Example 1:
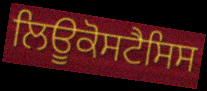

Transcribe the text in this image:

ਲਿਊਕੋਸਟੈਸਿਸ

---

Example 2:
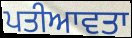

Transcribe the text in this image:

ਪਤੀਆਵਤਾ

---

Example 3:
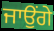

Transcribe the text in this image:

ਜਾਉਂਗੇ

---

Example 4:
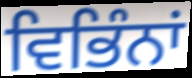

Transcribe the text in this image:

ਵਿਭਿੰਨਾਂ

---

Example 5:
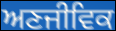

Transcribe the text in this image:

ਅਣਜੀਵਿਕ